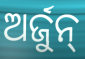
ଅର୍ଜୁନ୍